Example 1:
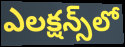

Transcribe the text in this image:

ఎలక్షన్స్‌లో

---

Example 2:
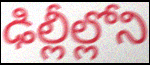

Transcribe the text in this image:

ఢిల్లీల్లోని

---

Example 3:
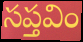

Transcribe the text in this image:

సప్తవిం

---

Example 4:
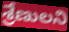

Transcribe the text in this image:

శ్రేణులని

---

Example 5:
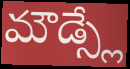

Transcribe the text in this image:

మౌడ్స్లే